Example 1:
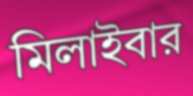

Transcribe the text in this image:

মিলাইবার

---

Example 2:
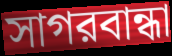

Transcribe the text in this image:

সাগরবান্ধা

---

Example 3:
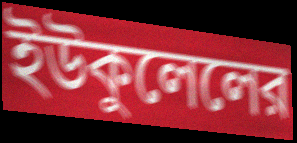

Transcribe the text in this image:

ইউকুলেলের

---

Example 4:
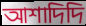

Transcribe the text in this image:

আশাদিদি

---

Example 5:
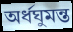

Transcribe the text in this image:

অর্ধঘুমন্ত